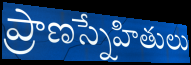
ప్రాణస్నేహితులు